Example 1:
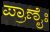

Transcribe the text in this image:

ಪ್ರಾಣೈಃ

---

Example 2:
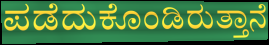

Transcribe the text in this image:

ಪಡೆದುಕೊಂಡಿರುತ್ತಾನೆ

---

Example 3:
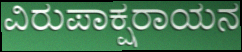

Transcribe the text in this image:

ವಿರುಪಾಕ್ಷರಾಯನ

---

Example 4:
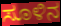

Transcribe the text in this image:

ಸೂಳಿನ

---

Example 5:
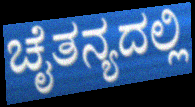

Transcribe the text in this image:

ಚೈತನ್ಯದಲ್ಲಿ